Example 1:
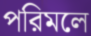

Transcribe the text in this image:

পরিমলে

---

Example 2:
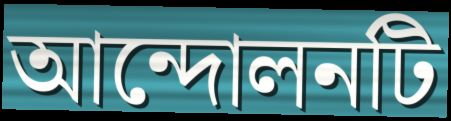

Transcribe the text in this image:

আন্দোলনটি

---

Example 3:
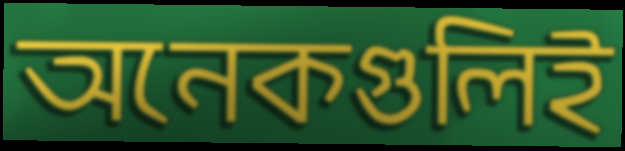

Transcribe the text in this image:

অনেকগুলিই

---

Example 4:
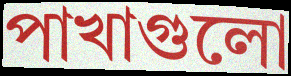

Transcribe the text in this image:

পাখাগুলো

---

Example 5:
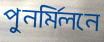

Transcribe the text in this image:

পুনর্মিলনে